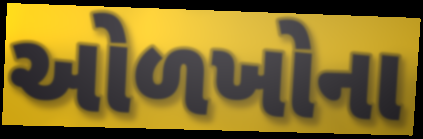
ઓળખોના